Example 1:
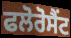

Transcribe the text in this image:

ਫਲੋਰੋਸੈਂਟ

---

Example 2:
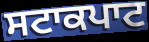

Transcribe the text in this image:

ਸਟਾਕਪਾਟ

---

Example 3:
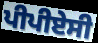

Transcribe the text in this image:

ਪੀਪੀਏਸੀ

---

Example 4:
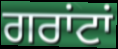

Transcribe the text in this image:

ਗਰਾਂਟਾਂ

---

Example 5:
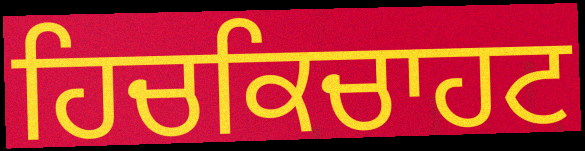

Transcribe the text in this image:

ਹਿਚਕਿਚਾਹਟ